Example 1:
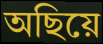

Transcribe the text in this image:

অছিয়ে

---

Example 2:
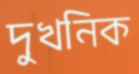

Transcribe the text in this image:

দুখনিক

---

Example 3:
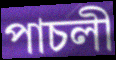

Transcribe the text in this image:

পাচলী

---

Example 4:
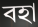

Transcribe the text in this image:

বহা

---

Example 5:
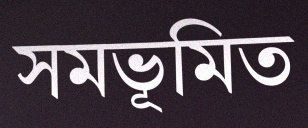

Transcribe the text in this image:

সমভূমিত